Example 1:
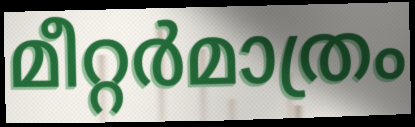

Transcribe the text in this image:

മീറ്റർമാത്രം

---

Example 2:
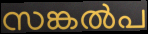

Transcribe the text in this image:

സങ്കൽപ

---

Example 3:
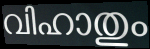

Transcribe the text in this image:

വിഹാതും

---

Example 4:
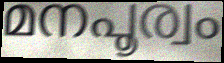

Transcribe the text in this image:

മനപൂര്വം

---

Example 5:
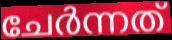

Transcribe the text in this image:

ചേർന്നത്